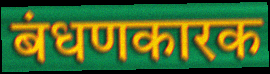
बंधणकारक